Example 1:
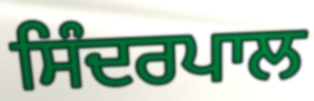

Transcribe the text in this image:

ਸਿੰਦਰਪਾਲ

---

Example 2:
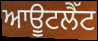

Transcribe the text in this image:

ਆਊਟਲੈੱਟ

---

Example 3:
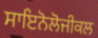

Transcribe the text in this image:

ਸਾਇਨੋਲੋਜੀਕਲ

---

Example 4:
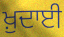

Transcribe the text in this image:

ਖ਼ੁਦਾਈ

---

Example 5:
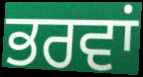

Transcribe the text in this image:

ਭਰਵਾਂ